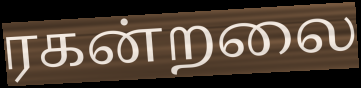
ரகன்றலை